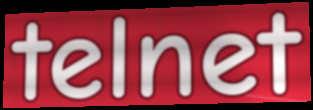
telnet